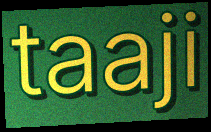
taaji